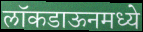
लॉकडाऊनमध्ये